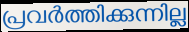
പ്രവർത്തിക്കുന്നില്ല